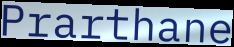
Prarthane